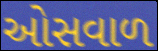
ઓસવાળ